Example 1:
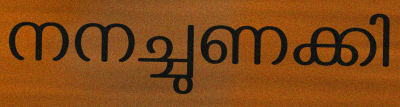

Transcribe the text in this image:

നനച്ചുണക്കി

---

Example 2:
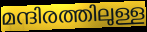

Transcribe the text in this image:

മന്ദിരത്തിലുള്ള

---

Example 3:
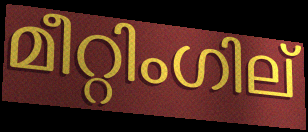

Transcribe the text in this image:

മീറ്റിംഗില്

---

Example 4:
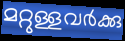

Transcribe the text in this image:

മറ്റുള്ളവർക്കു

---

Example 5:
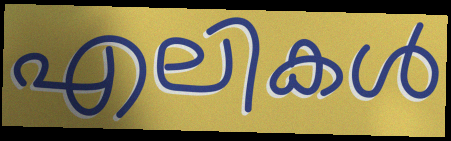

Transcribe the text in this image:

എലികൾ